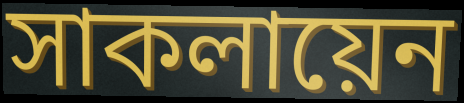
সাকলায়েন